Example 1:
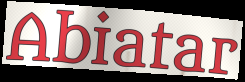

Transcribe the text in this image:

Abiatar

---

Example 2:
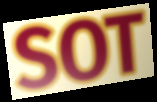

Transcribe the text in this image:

SOT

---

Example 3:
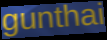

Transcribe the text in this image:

gunthai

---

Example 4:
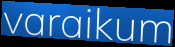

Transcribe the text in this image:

varaikum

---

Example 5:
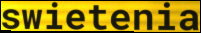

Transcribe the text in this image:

swietenia